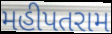
મહીપતરામ